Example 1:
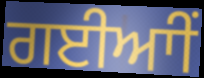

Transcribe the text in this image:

ਗਈਆੀਂ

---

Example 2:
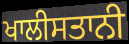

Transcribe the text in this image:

ਖਾਲੀਸਤਾਨੀ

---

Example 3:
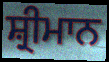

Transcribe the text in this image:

ਸ਼੍ਰੀਮਾਨ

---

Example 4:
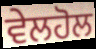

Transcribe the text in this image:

ਵੇਲਹੋਲ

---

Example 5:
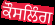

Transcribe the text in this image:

ਕੌਸਲਿੰਗ